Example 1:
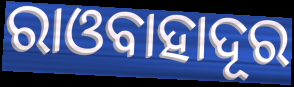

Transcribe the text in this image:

ରାଓବାହାଦୂର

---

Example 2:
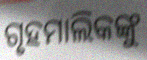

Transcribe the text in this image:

ଗୃହମାଲିକଙ୍କୁ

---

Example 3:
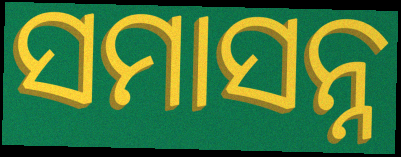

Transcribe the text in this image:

ସମାସନ୍ନ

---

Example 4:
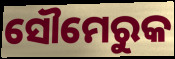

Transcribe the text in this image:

ସୌମେରୁକ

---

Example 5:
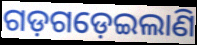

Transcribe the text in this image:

ଗଡ଼ଗଡ଼େଇଲାଣି